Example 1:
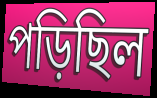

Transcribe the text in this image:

পড়িছিল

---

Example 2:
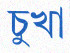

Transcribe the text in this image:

চুখা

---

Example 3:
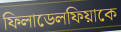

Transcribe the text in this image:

ফিলাডেলফিয়াকে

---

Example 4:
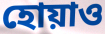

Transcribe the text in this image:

হোয়াও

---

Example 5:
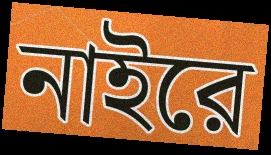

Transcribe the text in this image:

নাইরে